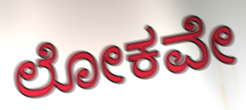
ಲೋಕವೇ